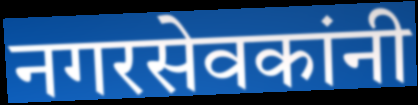
नगरसेवकांनी